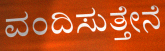
ವಂದಿಸುತ್ತೇನೆ